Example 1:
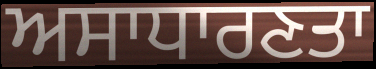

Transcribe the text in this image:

ਅਸਾਧਾਰਣਤਾ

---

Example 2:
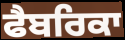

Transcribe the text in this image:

ਫੈਬਰਿਕਾ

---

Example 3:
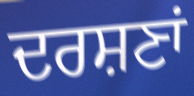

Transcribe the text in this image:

ਦਰਸ਼ਣਾਂ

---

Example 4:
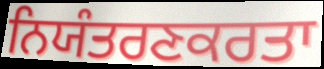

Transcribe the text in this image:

ਨਿਯੰਤਰਣਕਰਤਾ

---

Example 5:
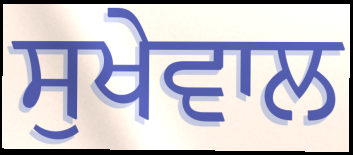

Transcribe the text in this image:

ਸੁਖੇਵਾਲ